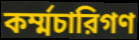
কর্ম্মচারিগণ